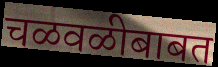
चळवळीबाबत